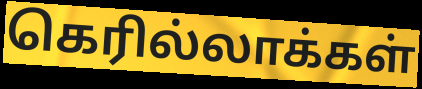
கெரில்லாக்கள்